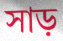
সাড়